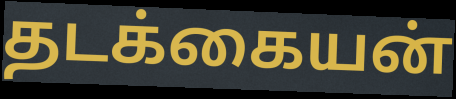
தடக்கையன்